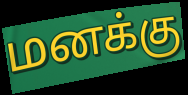
மனக்கு